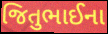
જિતુભાઈના